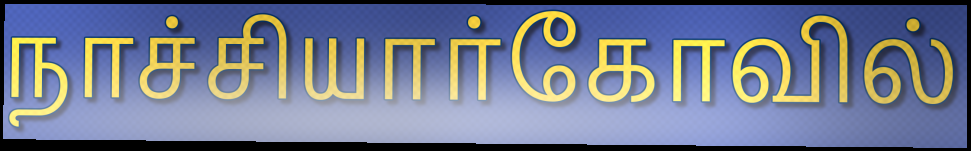
நாச்சியார்கோவில்